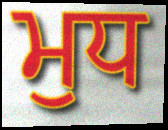
ਮੁਧ